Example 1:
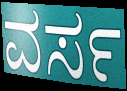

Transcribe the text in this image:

ವರ್ಸ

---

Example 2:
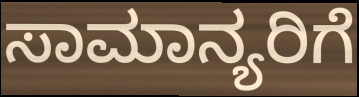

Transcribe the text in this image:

ಸಾಮಾನ್ಯರಿಗೆ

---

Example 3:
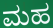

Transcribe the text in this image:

ಮಹ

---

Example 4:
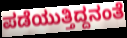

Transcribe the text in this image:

ಪಡೆಯುತ್ತಿದ್ದನಂತೆ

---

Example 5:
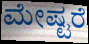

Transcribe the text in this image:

ಮೇಷ್ಟರೆ